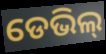
ଡେଭିଲ୍